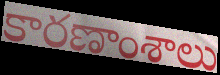
కారణాంశాలు